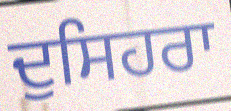
ਦੁਸਿਹਰਾ